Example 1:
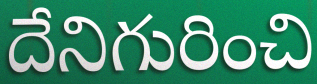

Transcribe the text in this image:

దేనిగురించి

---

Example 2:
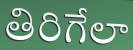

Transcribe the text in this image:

తిరిగేలా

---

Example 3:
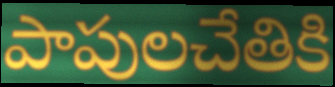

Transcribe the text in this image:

పాపులచేతికి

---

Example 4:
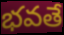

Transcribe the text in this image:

భవతే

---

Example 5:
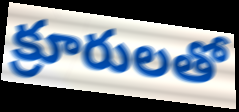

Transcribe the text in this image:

క్రూరులతో